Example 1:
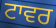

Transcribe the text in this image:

ਟਾਵਰ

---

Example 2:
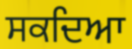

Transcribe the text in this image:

ਸਕਦਿਆ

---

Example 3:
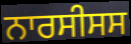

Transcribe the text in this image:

ਨਾਰਸੀਸਸ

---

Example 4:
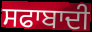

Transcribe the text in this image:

ਸਫਾਬਾਦੀ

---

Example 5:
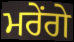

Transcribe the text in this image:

ਮਰੇਂਗੇ